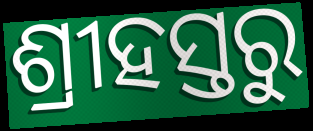
ଶ୍ରୀହସ୍ତରୁ